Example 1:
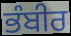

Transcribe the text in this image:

ਭੰਬੀਰ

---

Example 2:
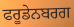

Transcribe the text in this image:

ਫਰੂਡੇਨਬਰਗ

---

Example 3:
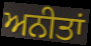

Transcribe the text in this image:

ਅਨੀਤਾਂ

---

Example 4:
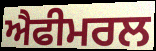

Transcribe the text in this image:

ਐਫੀਮਰਲ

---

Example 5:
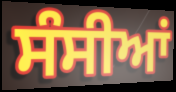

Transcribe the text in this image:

ਸੰਸੀਆਂ